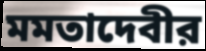
মমতাদেবীর